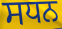
ਸਧਨ